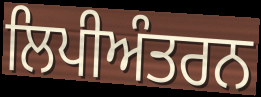
ਲਿਪੀਅੰਤਰਨ